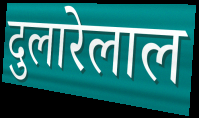
दुलारेलाल